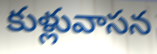
కుళ్లువాసన